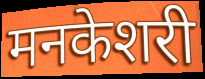
मनकेशरी